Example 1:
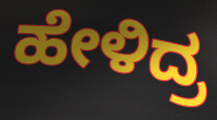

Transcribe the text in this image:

ಹೇಳಿದ್ರ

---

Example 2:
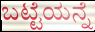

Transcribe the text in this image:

ಬಟ್ಟೆಯನ್ನೆ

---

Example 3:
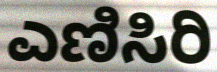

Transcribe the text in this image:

ಎಣಿಸಿರಿ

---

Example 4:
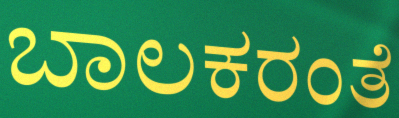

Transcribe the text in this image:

ಬಾಲಕರಂತೆ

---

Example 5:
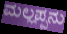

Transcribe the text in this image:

ಮಲ್ಲಪ್ಪನು